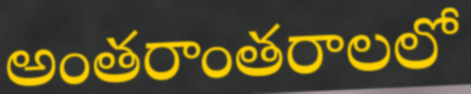
అంతరాంతరాలలో